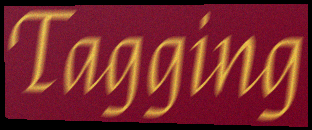
Tagging